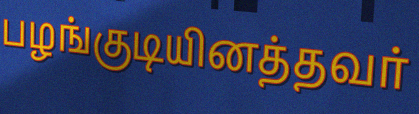
பழங்குடியினத்தவர்